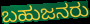
ಬಹುಜನರು